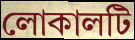
লোকালটি